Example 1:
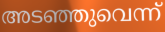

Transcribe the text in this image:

അടഞ്ഞുവെന്ന്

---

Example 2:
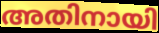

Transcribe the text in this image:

അതിനായി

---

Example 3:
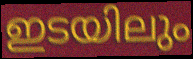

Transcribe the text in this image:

ഇടയിലും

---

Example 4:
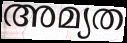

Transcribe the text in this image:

അമ്യത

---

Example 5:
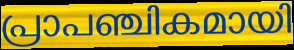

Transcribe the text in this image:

പ്രാപഞ്ചികമായി